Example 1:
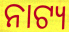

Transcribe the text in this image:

ନାଟ୍ୟ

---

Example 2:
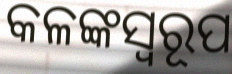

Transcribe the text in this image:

କଳଙ୍କସ୍ୱରୂପ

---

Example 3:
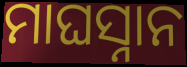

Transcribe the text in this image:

ମାଘସ୍ନାନ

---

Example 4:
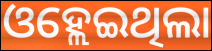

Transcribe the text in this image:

ଓହ୍ଲେଇଥିଲା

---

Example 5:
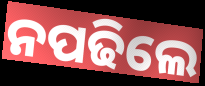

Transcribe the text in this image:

ନପଢିଲେ